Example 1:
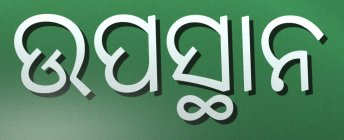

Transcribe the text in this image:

ଉପସ୍ଥାନ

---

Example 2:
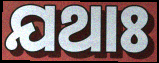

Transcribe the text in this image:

ଯଥାଃ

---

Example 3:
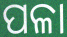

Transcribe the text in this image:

ପଳା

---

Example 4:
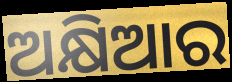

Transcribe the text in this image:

ଅକ୍ଷିଆର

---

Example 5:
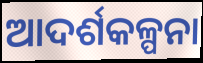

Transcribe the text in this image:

ଆଦର୍ଶକଳ୍ପନା